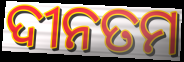
ଦୀନତମ